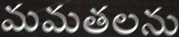
మమతలను